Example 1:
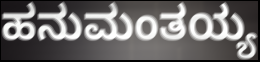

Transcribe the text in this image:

ಹನುಮಂತಯ್ಯ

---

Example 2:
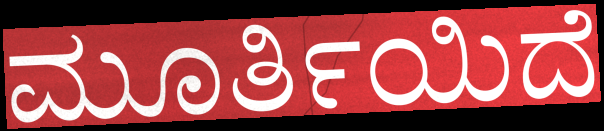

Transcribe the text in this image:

ಮೂರ್ತಿಯಿದೆ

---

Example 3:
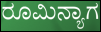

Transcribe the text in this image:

ರೂಮಿನ್ಯಾಗ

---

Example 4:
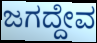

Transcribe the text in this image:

ಜಗದ್ದೇವ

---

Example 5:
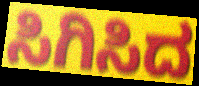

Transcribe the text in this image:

ಸಿಗಿಸಿದ